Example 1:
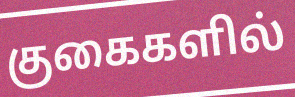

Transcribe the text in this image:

குகைகளில்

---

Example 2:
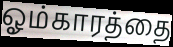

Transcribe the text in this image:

ஓம்காரத்தை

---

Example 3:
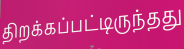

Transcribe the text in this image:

திறக்கப்பட்டிருந்தது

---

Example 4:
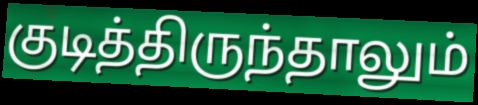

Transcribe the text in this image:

குடித்திருந்தாலும்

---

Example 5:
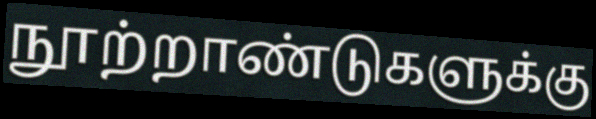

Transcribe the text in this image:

நூற்றாண்டுகளுக்கு